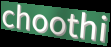
choothi